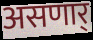
असणार्